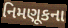
નિમણૂકના